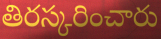
తిరస్కరించారు